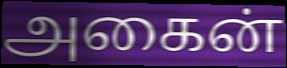
அகைன்